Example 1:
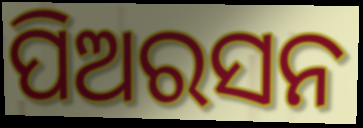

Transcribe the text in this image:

ପିଅରସନ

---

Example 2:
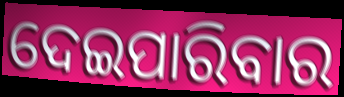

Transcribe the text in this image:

ଦେଇପାରିବାର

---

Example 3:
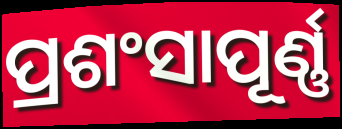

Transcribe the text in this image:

ପ୍ରଶଂସାପୂର୍ଣ୍ଣ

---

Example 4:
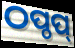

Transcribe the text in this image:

ଠପ୍ଠପ୍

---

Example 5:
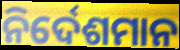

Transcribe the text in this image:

ନିର୍ଦେଶମାନ